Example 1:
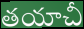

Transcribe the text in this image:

తయాచీ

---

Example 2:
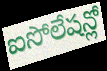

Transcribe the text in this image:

ఐసోలేషన్లో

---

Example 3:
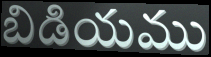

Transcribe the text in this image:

బిడియము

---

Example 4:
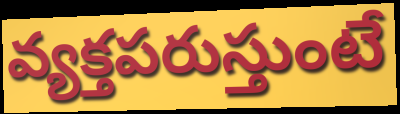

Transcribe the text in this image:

వ్యక్తపరుస్తుంటే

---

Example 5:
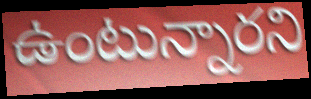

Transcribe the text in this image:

ఉంటున్నారని